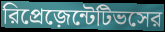
রিপ্রেজ়েন্টেটিভসের